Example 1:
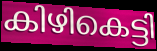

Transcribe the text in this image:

കിഴികെട്ടി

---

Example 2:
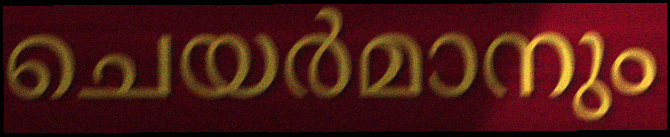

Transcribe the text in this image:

ചെയർമാനും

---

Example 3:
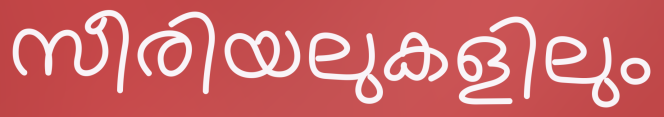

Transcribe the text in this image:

സീരിയലുകളിലും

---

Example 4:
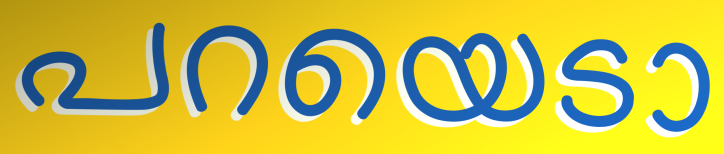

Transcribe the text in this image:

പറയെടാ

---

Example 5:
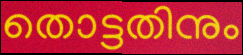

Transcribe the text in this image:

തൊട്ടതിനും